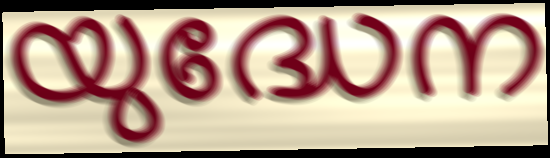
യുദ്ധേന